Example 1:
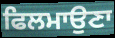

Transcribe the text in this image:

ਫਿਲਮਾਉਣਾ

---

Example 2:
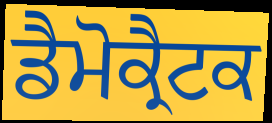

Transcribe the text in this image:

ਡੈਮੋਕ੍ਰੈਟਕ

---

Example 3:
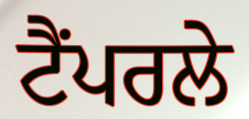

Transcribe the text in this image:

ਟੈਂਪਰਲੇ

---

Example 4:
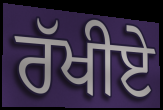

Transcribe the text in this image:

ਰੱਖੀਏ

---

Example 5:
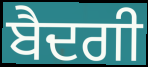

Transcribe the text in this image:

ਬੈਦਗੀ